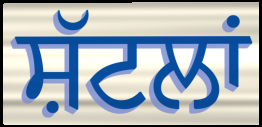
ਸ਼ੱਟਲਾਂ